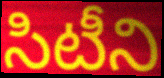
సిటీని